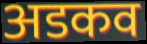
अडकव